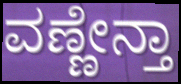
ವಣ್ಣೇನ್ತಾ